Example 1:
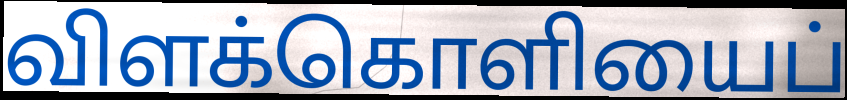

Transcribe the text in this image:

விளக்கொளியைப்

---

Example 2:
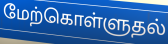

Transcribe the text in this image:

மேற்கொள்ளுதல்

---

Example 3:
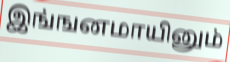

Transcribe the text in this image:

இங்ஙனமாயினும்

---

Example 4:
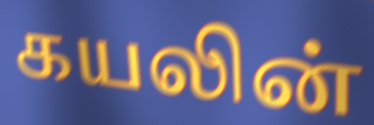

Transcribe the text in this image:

கயலின்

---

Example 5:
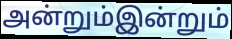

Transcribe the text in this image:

அன்றும்இன்றும்